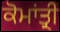
ਕੋਮਾਂਤ੍ਰੀ